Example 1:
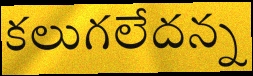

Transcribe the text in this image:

కలుగలేదన్న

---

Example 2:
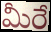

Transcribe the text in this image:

మీరే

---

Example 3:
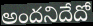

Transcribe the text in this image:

అందనిదేదో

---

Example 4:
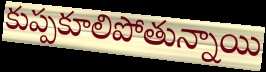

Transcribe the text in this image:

కుప్పకూలిపోతున్నాయి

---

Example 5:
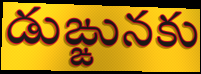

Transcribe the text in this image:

డుఙ్ఙునకు